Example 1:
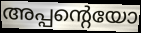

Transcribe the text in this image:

അപ്പന്റെയോ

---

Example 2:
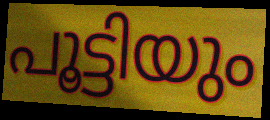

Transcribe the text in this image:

പൂട്ടിയും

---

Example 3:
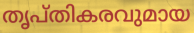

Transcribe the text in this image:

തൃപ്തികരവുമായ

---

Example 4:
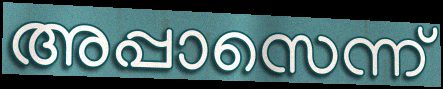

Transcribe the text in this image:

അപ്പാസെന്ന്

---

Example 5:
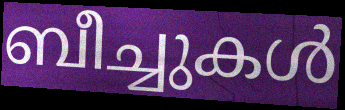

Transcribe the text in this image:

ബീച്ചുകൾ